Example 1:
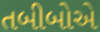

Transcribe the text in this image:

તબીબોએ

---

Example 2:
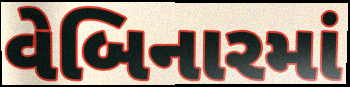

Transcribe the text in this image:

વેબિનારમાં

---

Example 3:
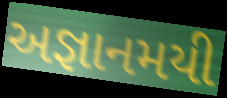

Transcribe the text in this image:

અજ્ઞાનમયી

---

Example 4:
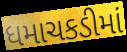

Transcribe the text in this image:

ધમાચકડીમાં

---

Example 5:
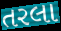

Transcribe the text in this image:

તરલા